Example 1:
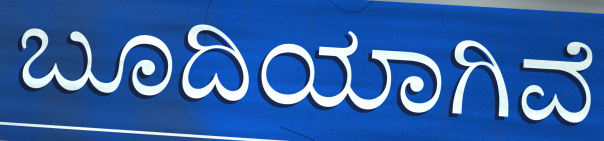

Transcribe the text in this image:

ಬೂದಿಯಾಗಿವೆ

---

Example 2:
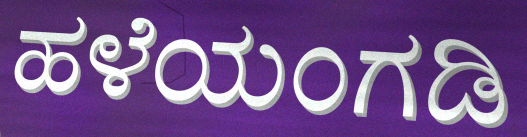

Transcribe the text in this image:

ಹಳೆಯಂಗಡಿ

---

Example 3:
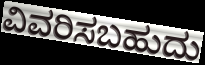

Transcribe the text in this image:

ವಿವರಿಸಬಹುದು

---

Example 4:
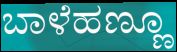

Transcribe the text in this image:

ಬಾಳೆಹಣ್ಣೂ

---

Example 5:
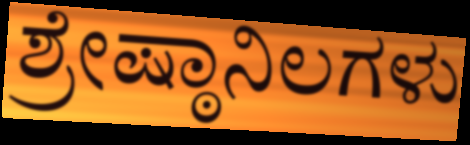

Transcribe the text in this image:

ಶ್ರೇಷ್ಠಾನಿಲಗಳು